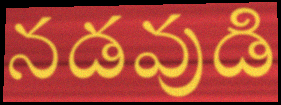
నడవుడి